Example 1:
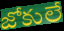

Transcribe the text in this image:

జోకులే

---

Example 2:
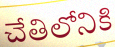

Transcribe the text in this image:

చేతిలోనికి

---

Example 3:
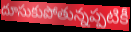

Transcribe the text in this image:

దూసుకుపోతున్నప్పటికీ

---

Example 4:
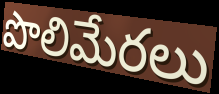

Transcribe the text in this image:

పొలిమేరలు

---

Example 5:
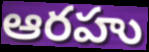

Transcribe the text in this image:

ఆరహు